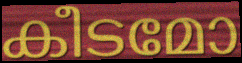
കീടമോ